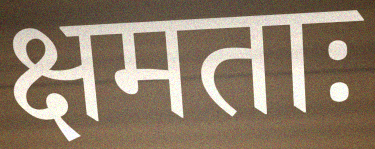
क्षमताः